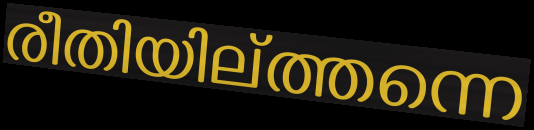
രീതിയില്ത്തന്നെ